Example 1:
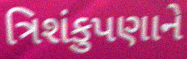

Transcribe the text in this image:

ત્રિશંકુપણાને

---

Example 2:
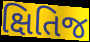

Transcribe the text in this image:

ક્ષિતિજ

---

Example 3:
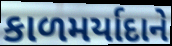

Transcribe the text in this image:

કાળમર્યાદાને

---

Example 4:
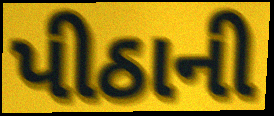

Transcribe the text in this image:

પીઠાની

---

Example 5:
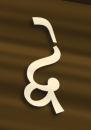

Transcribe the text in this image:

દ્વે